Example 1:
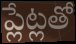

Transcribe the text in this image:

ప్లేట్లతో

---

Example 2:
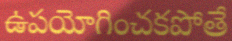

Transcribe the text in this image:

ఉపయోగించకపోతే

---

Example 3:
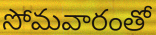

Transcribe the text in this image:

సోమవారంతో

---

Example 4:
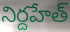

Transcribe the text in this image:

నిర్దహేత్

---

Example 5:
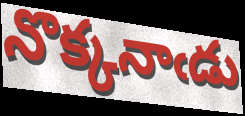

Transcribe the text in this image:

నొక్కనాఁడు